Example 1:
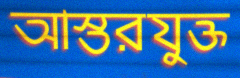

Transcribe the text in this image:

আস্তরযুক্ত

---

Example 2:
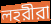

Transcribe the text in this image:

লহরীরা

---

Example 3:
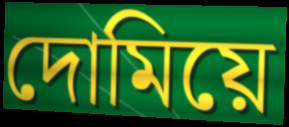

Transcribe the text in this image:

দোমিয়ে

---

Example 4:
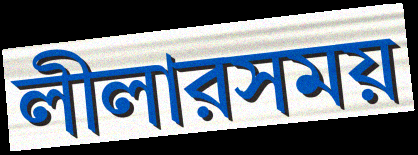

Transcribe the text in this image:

লীলারসময়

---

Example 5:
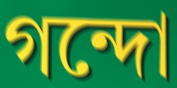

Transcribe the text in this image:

গন্দো